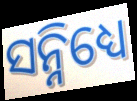
ସନ୍ନିଧ୍ୟେ